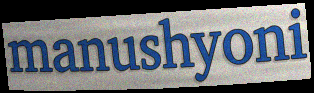
manushyoni